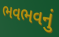
ભવભવનું